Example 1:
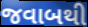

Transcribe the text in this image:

જવાબથી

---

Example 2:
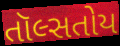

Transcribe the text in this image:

તૉલ્સતોય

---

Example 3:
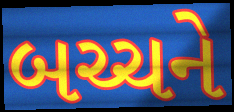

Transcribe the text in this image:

બચ્ચને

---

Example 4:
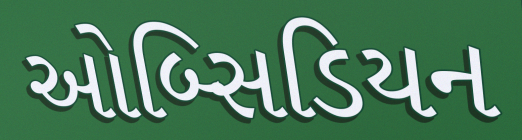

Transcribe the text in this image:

ઓબ્સિડિયન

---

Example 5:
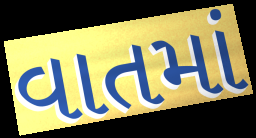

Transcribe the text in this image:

વાતમાં